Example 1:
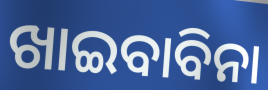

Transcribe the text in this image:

ଖାଇବାବିନା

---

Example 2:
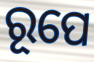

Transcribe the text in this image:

ରୂପେ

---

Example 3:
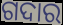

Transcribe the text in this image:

ଗଦାର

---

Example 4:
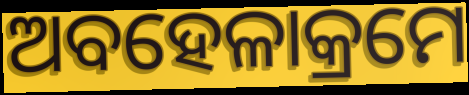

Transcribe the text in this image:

ଅବହେଳାକ୍ରମେ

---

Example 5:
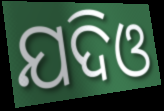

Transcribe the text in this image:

ଯଦିଓ